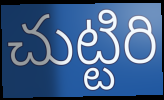
చుట్టిరి